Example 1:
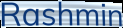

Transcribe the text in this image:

Rashmin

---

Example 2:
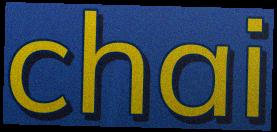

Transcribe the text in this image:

chai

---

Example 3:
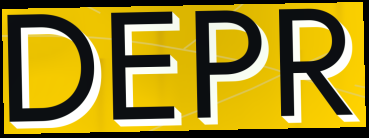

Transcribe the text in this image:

DEPR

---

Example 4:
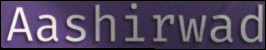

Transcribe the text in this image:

Aashirwad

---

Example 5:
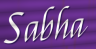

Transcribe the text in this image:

Sabha